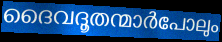
ദൈവദൂതന്മാർപോലും